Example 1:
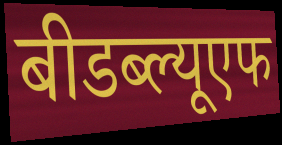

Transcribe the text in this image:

बीडब्ल्यूएफ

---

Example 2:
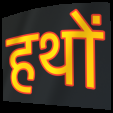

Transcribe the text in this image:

हथों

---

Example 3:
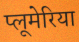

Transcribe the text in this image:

प्लूमेरिया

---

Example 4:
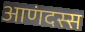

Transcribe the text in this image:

आणंदस्स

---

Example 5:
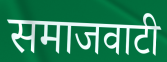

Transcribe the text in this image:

समाजवाटी